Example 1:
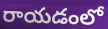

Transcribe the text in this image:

రాయడంలో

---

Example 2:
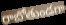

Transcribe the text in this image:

రాబోతుండగా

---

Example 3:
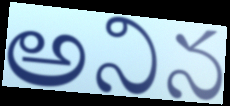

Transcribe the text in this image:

అనిన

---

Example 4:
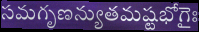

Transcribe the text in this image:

సమగృణన్యుతమష్టభోగైః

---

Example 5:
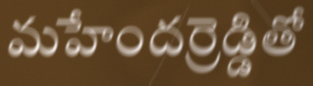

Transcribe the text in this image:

మహేందర్రెడ్డితో